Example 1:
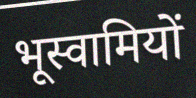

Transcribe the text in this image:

भूस्वामियों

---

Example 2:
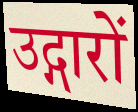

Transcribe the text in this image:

उद्गारों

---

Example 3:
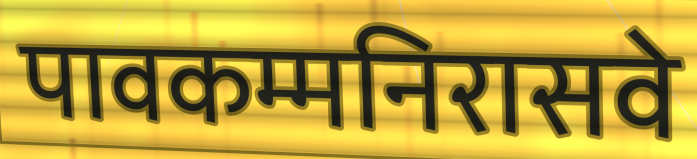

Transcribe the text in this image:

पावकम्मनिरासवे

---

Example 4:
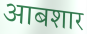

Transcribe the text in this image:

आबशार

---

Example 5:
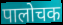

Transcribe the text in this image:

पालोचक